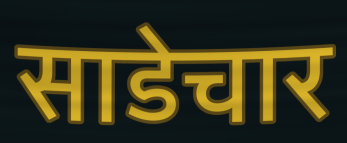
साडेचार